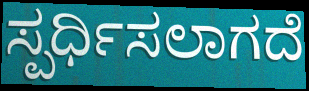
ಸ್ಪರ್ಧಿಸಲಾಗದೆ